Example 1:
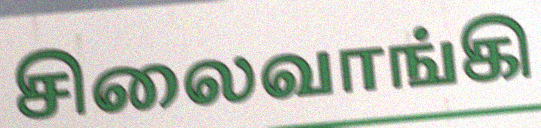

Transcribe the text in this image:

சிலைவாங்கி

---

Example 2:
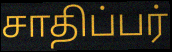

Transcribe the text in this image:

சாதிப்பர்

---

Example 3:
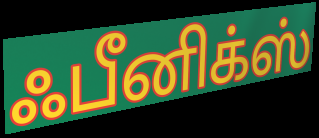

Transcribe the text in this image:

ஃபீனிக்ஸ்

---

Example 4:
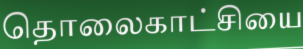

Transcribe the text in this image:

தொலைகாட்சியை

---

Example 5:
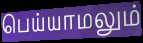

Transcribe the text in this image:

பெய்யாமலும்